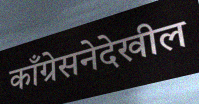
काँग्रेसनेदेखील